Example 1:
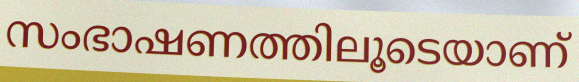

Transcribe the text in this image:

സംഭാഷണത്തിലൂടെയാണ്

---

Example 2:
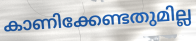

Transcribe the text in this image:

കാണിക്കേണ്ടതുമില്ല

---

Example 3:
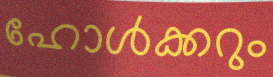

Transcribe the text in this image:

ഹോൾക്കറും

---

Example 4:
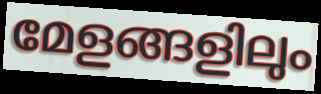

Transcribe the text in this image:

മേളങ്ങളിലും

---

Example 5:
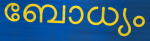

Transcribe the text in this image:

ബോധ്യം